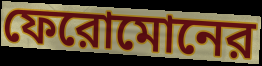
ফেরোমোনের